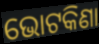
ଭୋଟକିଣା